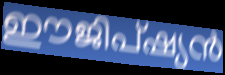
ഈജിപ്ഷ്യൻ